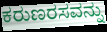
ಕರುಣರಸವನ್ನು